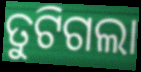
ତୁଟିଗଲା